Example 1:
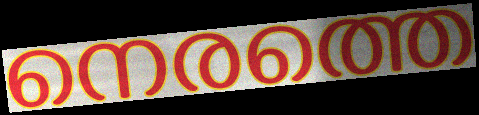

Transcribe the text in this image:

നെരത്തെ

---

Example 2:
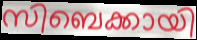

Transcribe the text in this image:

സിബെക്കായി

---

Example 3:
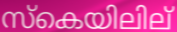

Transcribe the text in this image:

സ്കെയിലില്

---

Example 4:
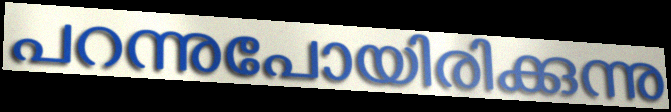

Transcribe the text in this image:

പറന്നുപോയിരിക്കുന്നു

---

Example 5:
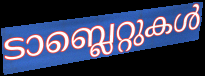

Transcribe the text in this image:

ടാബ്ലെറ്റുകൾ